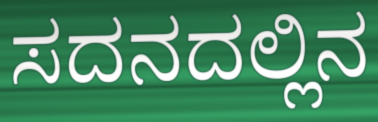
ಸದನದಲ್ಲಿನ